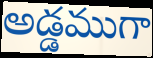
అడ్డముగా